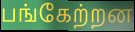
பங்கேற்றன